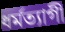
ধর্মত্যাগী